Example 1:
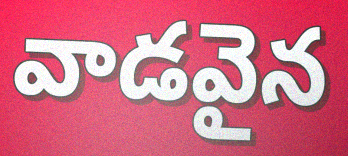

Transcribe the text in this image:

వాడవైన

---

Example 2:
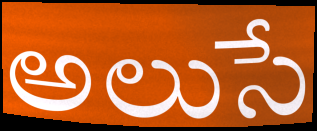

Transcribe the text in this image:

అలుసే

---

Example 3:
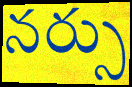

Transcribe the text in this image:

నర్సు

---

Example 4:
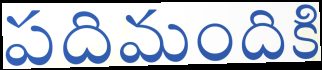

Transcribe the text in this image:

పదిమందికి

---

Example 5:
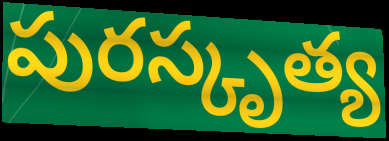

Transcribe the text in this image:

పురస్కృత్య